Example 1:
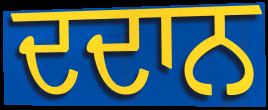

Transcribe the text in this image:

ਦਦਾਨ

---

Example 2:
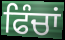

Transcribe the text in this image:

ਫਿੰਚਾਂ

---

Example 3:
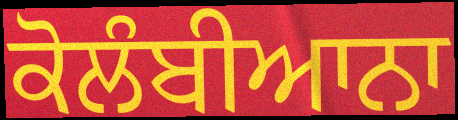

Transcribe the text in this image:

ਕੋਲੰਬੀਆਨਾ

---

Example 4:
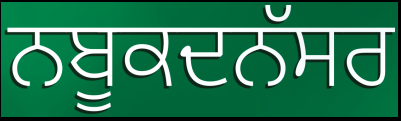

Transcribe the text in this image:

ਨਬੂਕਦਨੱਸਰ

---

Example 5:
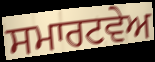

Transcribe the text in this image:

ਸਮਾਰਟਵੇਅ